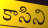
కాసిని